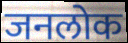
जनलोक